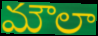
మౌలా